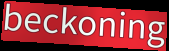
beckoning